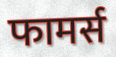
फामर्स